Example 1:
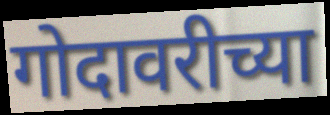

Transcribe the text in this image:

गोदावरीच्या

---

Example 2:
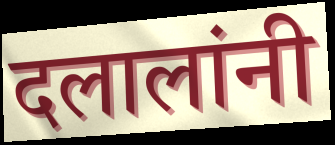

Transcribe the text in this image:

दलालांनी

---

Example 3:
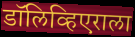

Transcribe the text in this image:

डॉलिव्हिएराला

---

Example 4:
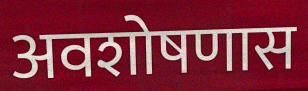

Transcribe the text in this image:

अवशोषणास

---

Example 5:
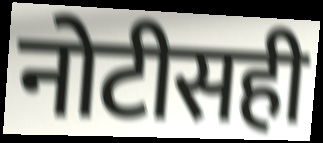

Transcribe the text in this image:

नोटीसही